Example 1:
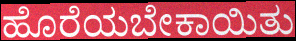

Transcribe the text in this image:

ಹೊರೆಯಬೇಕಾಯಿತು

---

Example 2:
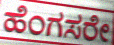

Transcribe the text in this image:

ಹೆಂಗಸರೇ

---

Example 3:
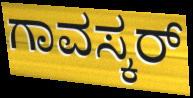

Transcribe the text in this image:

ಗಾವಸ್ಕರ್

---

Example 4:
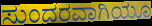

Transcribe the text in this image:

ಸುಂದರವಾಗಿಯೂ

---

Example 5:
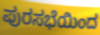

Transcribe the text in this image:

ಪುರಸಭೆಯಿಂದ